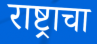
राष्ट्राचा